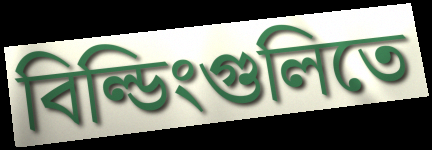
বিল্ডিংগুলিতে